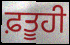
ਫ਼ਤੂਹੀ